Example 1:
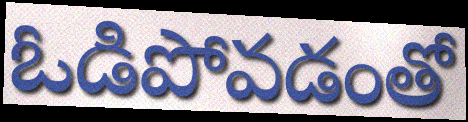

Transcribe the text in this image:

ఓడిపోవడంతో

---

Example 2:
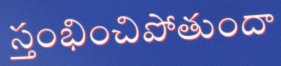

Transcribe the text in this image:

స్తంభించిపోతుందా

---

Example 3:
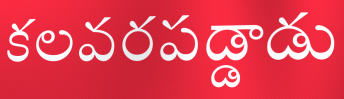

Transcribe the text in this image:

కలవరపడ్డాడు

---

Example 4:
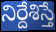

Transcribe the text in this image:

నిర్దేశిస్తే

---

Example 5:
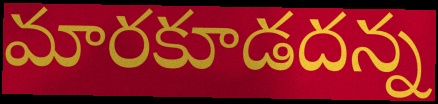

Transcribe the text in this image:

మారకూడదన్న